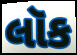
લૉક